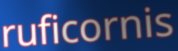
ruficornis